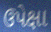
ઉપેક્ષા